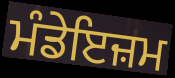
ਮੰਡੇਇਜ਼ਮ